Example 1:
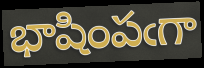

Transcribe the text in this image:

భాషింపఁగా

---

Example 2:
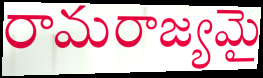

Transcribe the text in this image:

రామరాజ్యమై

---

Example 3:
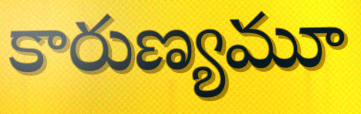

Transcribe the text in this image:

కారుణ్యమూ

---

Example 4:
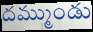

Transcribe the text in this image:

దమ్ముండు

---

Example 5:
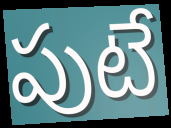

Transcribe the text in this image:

పుటే